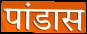
पांडास